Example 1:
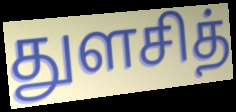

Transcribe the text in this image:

துளசித்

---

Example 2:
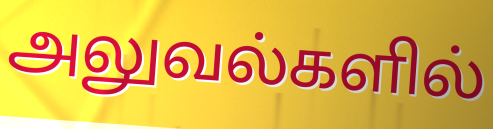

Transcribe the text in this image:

அலுவல்களில்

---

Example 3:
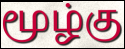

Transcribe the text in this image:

மூழ்கு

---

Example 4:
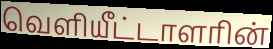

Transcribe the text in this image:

வெளியீட்டாளரின்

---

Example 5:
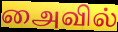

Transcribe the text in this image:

அைவில்